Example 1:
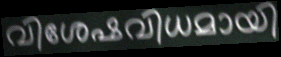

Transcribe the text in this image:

വിശേഷവിധമായി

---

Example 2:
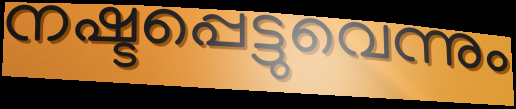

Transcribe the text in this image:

നഷ്ടപ്പെട്ടുവെന്നും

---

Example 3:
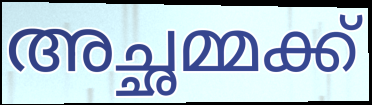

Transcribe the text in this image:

അച്ഛമ്മക്ക്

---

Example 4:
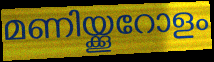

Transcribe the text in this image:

മണിയ്ക്കൂറോളം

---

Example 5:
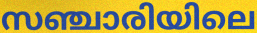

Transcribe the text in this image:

സഞ്ചാരിയിലെ